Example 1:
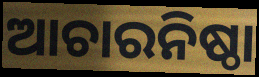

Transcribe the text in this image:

ଆଚାରନିଷ୍ଠା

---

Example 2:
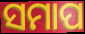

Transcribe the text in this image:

ସମାପ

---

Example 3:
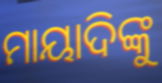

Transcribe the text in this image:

ମାୟାଦିଙ୍କୁ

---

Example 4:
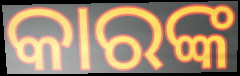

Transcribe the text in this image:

କାରଙ୍କ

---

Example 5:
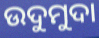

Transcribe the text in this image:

ଉଦୁମୁଦା